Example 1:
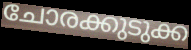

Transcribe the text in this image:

ചോരക്കുടുക്ക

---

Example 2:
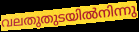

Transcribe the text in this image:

വലതുതുടയിൽനിന്നു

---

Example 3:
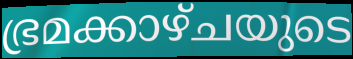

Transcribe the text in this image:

ഭ്രമക്കാഴ്ചയുടെ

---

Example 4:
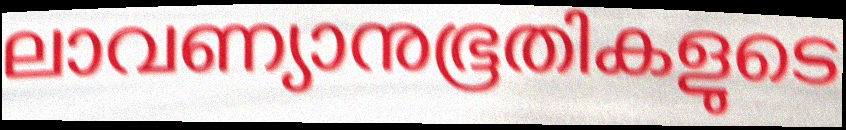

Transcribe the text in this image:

ലാവണ്യാനുഭൂതികളുടെ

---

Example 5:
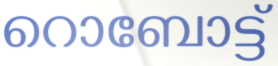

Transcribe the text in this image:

റൊബോട്ട്